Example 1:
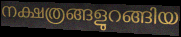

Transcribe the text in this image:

നക്ഷത്രങ്ങളുറങ്ങിയ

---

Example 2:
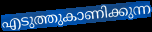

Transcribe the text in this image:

എടുത്തുകാണിക്കുന്ന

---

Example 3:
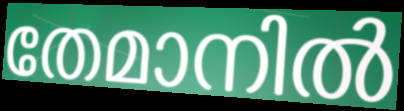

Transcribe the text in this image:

തേമാനിൽ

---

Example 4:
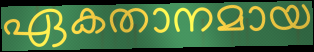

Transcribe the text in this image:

ഏകതാനമായ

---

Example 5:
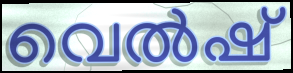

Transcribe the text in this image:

വെൽഷ്